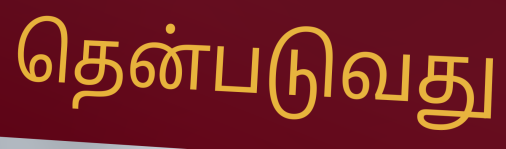
தென்படுவது